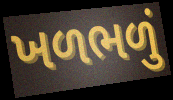
ખળભળું